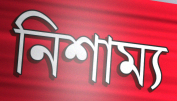
নিশাম্য